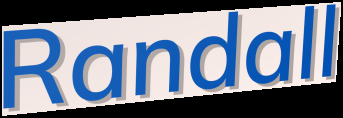
Randall